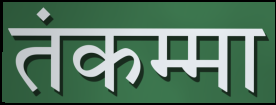
तंकम्मा